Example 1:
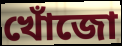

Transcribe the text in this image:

খোঁজো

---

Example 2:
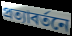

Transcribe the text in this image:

প্রত্যাবর্তনে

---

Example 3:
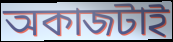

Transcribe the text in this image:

অকাজটাই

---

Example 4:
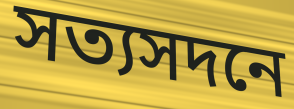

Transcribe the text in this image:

সত্যসদনে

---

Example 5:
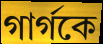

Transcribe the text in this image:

গার্গকে